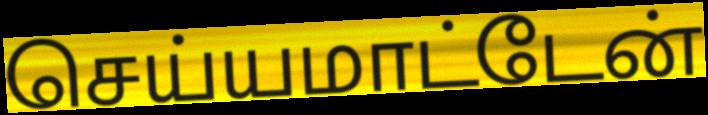
செய்யமாட்டேன்